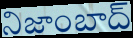
నిజాంబాద్